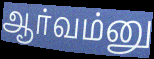
ஆர்வம்னு